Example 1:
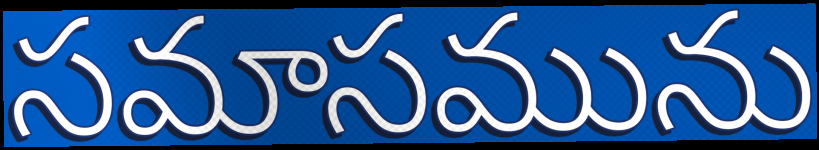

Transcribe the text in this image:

సమాసమును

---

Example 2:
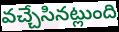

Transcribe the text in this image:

వచ్చేసినట్లుంది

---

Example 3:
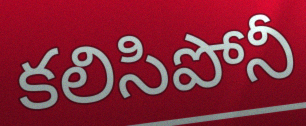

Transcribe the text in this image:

కలిసిపోనీ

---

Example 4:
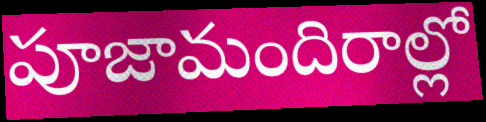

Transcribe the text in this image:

పూజామందిరాల్లో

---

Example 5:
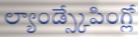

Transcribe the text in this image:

ల్యాండ్స్కేపింగ్లో